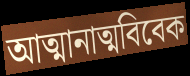
আত্মানাত্মবিবেক